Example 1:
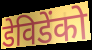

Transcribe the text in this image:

डेविडेंको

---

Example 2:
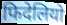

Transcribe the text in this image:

फिदेलियो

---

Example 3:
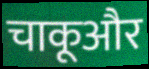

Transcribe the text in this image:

चाकूऔर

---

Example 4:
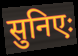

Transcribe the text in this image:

सुनिएः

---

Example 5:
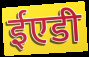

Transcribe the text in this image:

ईएडी